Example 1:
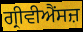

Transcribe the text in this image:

ਗ੍ਰੀਵੀਐਂਸਜ਼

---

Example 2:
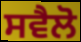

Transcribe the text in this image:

ਸਵੈਲੋ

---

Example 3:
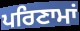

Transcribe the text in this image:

ਪਰਿਣਾਮਾਂ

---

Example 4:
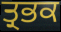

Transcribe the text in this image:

ਤ੍ਰਭਕ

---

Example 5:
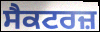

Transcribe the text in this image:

ਸੈਕਟਰਜ਼